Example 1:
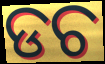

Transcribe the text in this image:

ଡଚ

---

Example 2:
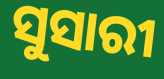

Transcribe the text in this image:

ସୁସାରୀ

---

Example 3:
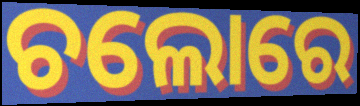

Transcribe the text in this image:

ଚଲୋରେ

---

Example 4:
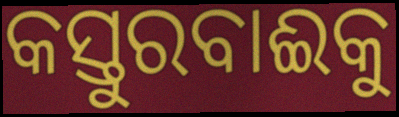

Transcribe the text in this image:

କସ୍ତୁରବାଈକୁ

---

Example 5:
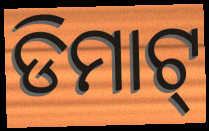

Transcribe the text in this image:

ଡିମାଟ୍